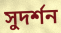
সুদর্শন